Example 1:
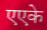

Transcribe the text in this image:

एएके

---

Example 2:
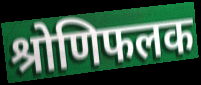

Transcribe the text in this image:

श्रोणिफलक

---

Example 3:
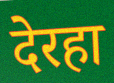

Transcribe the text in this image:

देरहा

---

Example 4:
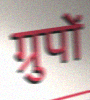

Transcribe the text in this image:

ग्रुपों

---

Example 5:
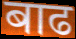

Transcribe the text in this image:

बाढ